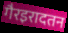
गैरइरादतन